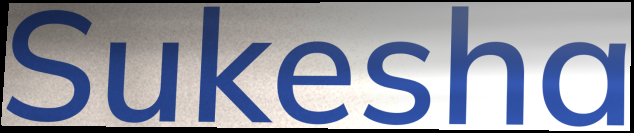
Sukesha